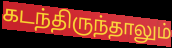
கடந்திருந்தாலும்